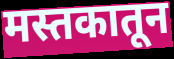
मस्तकातून